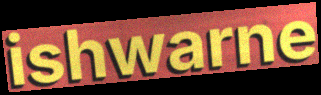
ishwarne